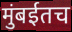
मुंबईतच